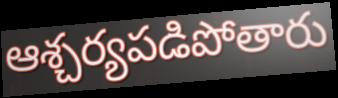
ఆశ్చర్యపడిపోతారు